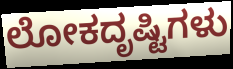
ಲೋಕದೃಷ್ಟಿಗಳು